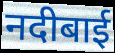
नदीबाई